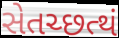
સેતચ્છત્થં